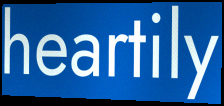
heartily